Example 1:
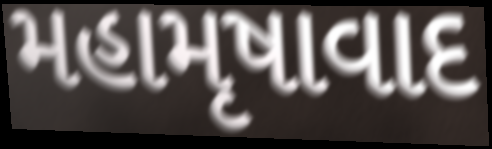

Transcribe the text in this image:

મહામૃષાવાદ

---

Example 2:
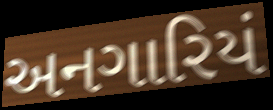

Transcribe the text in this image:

અનગારિયં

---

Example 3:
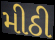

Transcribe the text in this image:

મીઠી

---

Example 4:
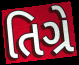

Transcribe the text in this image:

તિગ્રે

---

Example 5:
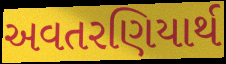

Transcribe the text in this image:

અવતરણિયાર્થ